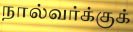
நால்வர்க்குக்